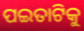
ପଇତାଟିକୁ